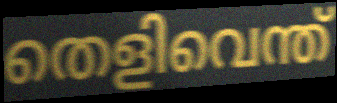
തെളിവെന്ത്